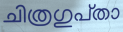
ചിത്രഗുപ്‌താ